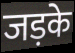
जड़के